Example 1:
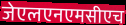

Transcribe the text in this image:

जेएलएनएमसीएच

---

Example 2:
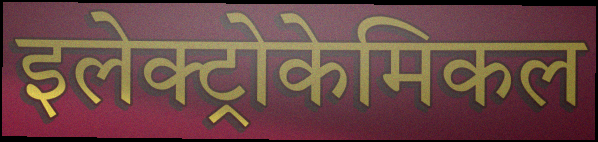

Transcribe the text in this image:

इलेक्ट्रोकेमिकल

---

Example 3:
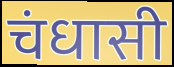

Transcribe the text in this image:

चंधासी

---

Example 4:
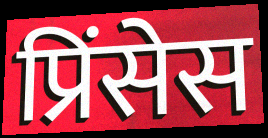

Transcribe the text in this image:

प्रिंसेस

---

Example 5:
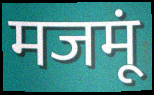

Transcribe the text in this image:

मजमूं